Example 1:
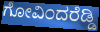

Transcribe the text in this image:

ಗೋವಿಂದರೆಡ್ಡಿ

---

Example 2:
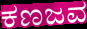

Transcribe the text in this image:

ಕಣಜವ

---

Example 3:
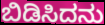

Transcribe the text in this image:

ಬಿಡಿಸಿದನು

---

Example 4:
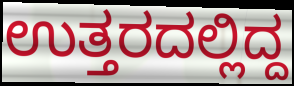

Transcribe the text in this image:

ಉತ್ತರದಲ್ಲಿದ್ದ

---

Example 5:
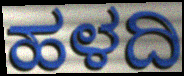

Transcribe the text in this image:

ಹಳದಿ